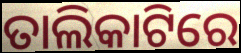
ତାଲିକାଟିରେ